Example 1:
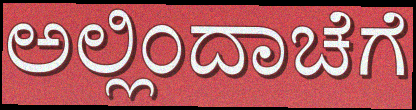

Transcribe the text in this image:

ಅಲ್ಲಿಂದಾಚೆಗೆ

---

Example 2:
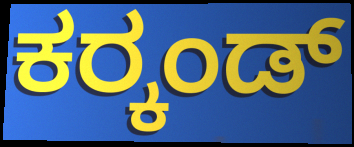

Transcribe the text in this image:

ಕರ್‍ಕಂಡ್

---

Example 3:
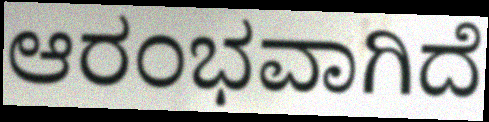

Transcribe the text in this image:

ಆರಂಭವಾಗಿದೆ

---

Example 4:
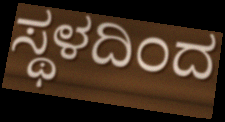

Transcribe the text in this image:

ಸ್ಥಳದಿಂದ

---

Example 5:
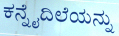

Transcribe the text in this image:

ಕನ್ನೈದಿಲೆಯನ್ನು